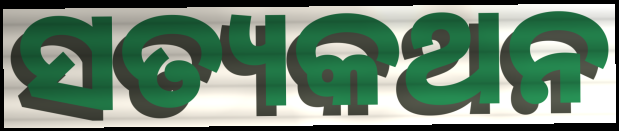
ସତ୍ୟକଥନ